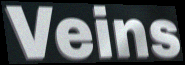
Veins